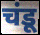
चंडू